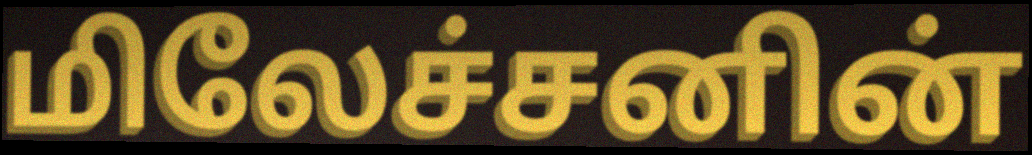
மிலேச்சனின்